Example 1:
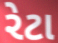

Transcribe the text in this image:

રેટા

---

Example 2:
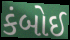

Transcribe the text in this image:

કંબોઈ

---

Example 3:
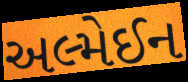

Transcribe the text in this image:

અલ્મેઈન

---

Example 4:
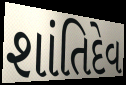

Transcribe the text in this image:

શાંતિદેવ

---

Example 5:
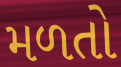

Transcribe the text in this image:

મળતો